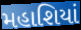
મહાશિયાં